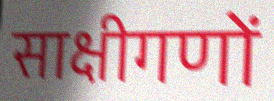
साक्षीगणों